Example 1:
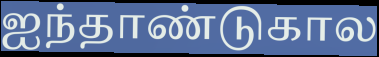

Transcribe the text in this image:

ஐந்தாண்டுகால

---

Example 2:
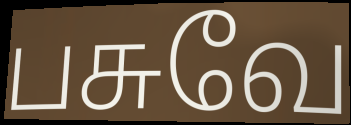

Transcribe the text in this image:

பசுவே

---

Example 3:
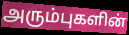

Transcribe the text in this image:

அரும்புகளின்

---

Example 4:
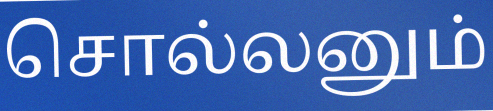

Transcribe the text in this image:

சொல்லனும்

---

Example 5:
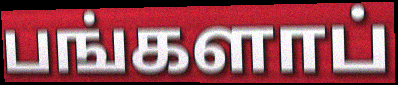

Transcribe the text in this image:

பங்களாப்